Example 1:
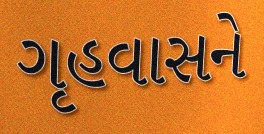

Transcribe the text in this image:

ગૃહવાસને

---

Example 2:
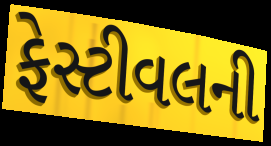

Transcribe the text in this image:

ફેસ્ટીવલની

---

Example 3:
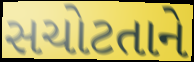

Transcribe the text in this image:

સચોટતાને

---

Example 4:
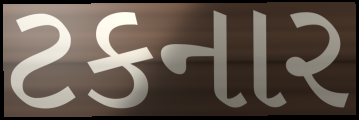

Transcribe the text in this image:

ટકનાર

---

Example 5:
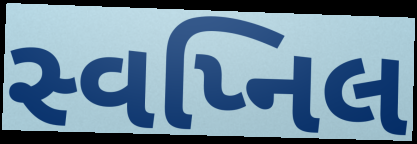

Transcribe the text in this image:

સ્વપ્નિલ